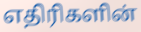
எதிரிகளின்